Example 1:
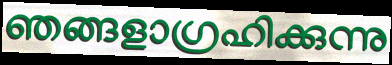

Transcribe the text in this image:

ഞങ്ങളാഗ്രഹിക്കുന്നു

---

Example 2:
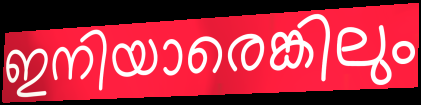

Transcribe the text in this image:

ഇനിയാരെങ്കിലും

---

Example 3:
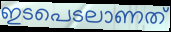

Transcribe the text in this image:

ഇടപെടലാണത്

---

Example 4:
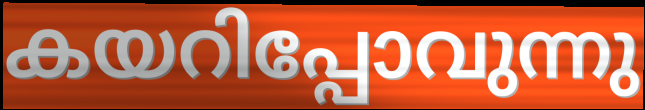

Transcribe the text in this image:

കയറിപ്പോവുന്നു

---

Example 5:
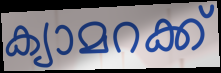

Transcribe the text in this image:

ക്യാമറക്ക്